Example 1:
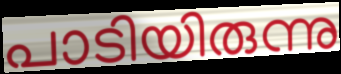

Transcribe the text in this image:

പാടിയിരുന്നു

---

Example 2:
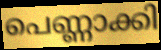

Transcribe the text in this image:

പെണ്ണാക്കി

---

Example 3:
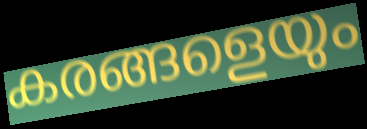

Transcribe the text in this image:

കരങ്ങളെയും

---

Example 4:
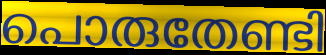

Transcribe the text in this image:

പൊരുതേണ്ടി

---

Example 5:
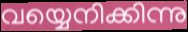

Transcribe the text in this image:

വയ്യെനിക്കിന്നു